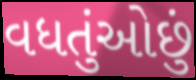
વધતુંઓછું